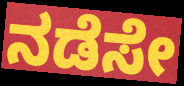
ನಡೆಸೇ